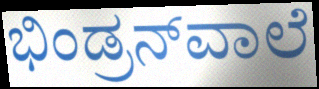
ಭಿಂಡ್ರನ್‌ವಾಲೆ